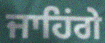
ਜਾਹਿਂਗੇ